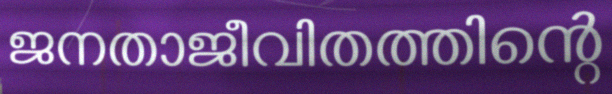
ജനതാജീവിതത്തിന്റെ